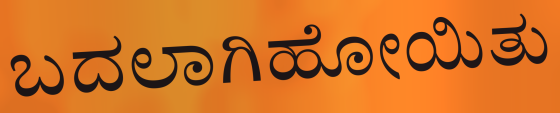
ಬದಲಾಗಿಹೋಯಿತು